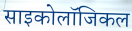
साइकोलॉजिकल